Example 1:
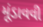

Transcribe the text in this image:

મૂંડાવવી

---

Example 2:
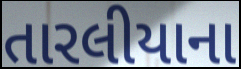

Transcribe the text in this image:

તારલીયાના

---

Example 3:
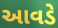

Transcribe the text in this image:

આવડે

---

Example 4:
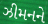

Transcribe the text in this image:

ઝીમનને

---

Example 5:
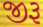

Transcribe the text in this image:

જીરૂ